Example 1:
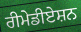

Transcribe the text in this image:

ਰੀਮੇਡੀਏਸ਼ਨ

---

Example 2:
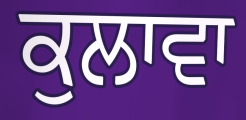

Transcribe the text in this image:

ਕੁਲਾਵਾ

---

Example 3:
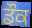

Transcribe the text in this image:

ਡੌਕ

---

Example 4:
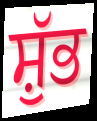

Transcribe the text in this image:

ਸ਼ੁੱਭ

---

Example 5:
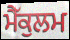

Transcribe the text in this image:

ਮੈੱਕੁਲਮ